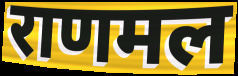
राणमल